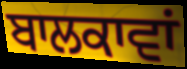
ਬਾਲਕਾਵਾਂ